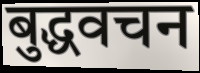
बुद्धवचन